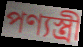
পণ্যস্ত্রী